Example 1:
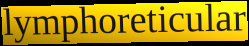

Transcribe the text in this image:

lymphoreticular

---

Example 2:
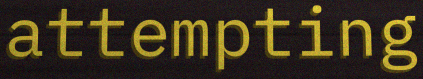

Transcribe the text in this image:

attempting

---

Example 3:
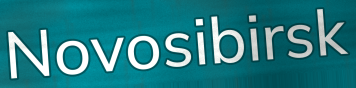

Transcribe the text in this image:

Novosibirsk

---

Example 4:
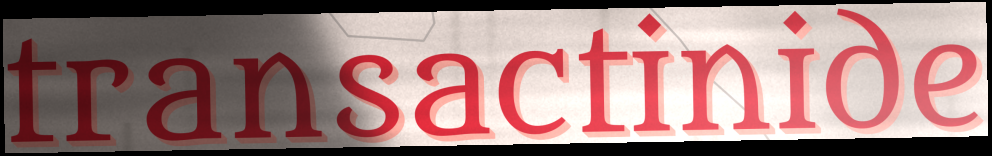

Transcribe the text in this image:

transactinide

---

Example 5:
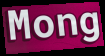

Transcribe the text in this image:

Mong